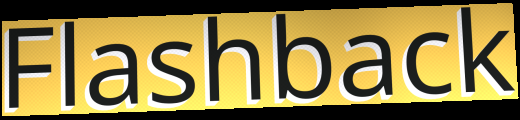
Flashback